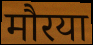
मौरया